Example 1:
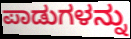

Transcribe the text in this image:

ಪಾಡುಗಳನ್ನು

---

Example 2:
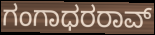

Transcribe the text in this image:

ಗಂಗಾಧರರಾವ್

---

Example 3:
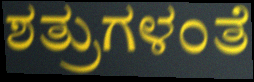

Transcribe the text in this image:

ಶತ್ರುಗಳಂತೆ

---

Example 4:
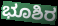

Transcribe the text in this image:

ಭೂಶಿರ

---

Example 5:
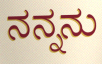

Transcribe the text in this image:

ನನ್ನನು